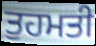
ਤੁਹਮਤੀ